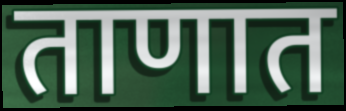
ताणात